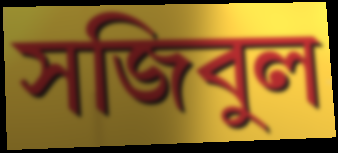
সজিবুল